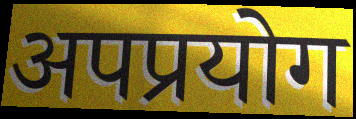
अपप्रयोग